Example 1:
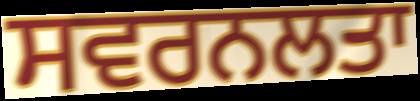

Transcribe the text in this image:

ਸਵਰਨਲਤਾ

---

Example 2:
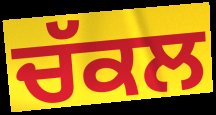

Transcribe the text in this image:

ਚੱਕਲ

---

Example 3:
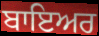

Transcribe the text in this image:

ਬਾਇਅਰ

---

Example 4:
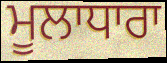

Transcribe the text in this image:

ਮੂਲਾਧਾਰਾ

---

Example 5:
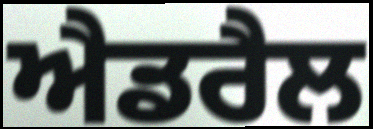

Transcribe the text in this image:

ਐਡਰੈਲ